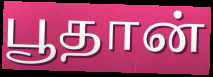
பூதான்